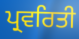
ਪ੍ਰਵਰਿਤੀ